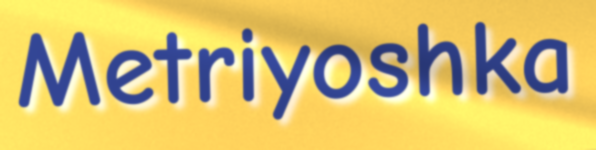
Metriyoshka